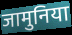
जामुनिया